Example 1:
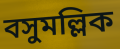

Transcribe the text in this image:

বসুমল্লিক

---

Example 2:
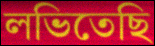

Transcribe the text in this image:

লভিতেছি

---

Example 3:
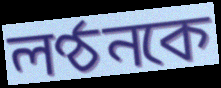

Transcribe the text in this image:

লণ্ঠনকে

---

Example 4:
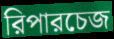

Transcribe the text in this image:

রিপারচেজ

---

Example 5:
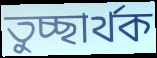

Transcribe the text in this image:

তুচ্ছার্থক